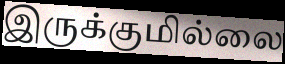
இருக்குமில்லை